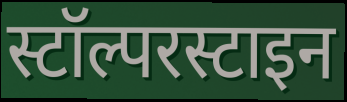
स्टॉल्परस्टाइन